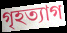
গৃহত্যাগ